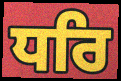
ਧਰਿ